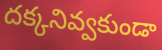
దక్కనివ్వకుండా